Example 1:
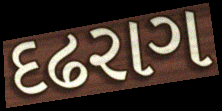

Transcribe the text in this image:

દઢરાગ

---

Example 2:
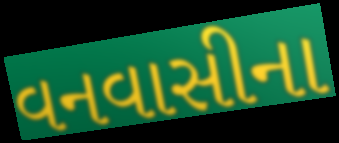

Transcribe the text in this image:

વનવાસીના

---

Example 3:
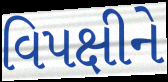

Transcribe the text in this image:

વિપક્ષીને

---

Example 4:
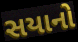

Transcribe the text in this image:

સયાનો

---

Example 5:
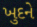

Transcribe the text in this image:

ખુદને